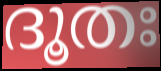
ദൂതഃ